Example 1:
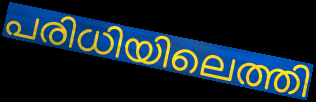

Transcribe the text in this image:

പരിധിയിലെത്തി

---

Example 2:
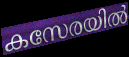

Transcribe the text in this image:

കസേരയിൽ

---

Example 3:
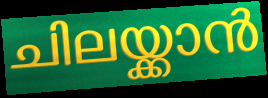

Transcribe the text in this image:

ചിലയ്ക്കാൻ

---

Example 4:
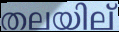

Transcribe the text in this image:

തലയില്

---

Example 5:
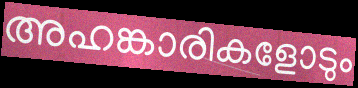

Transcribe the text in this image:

അഹങ്കാരികളോടും